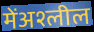
मेंअश्लील